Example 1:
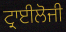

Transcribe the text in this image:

ਟ੍ਰਾਈਲੋਜੀ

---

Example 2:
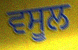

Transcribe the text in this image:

ਵਸੂਲ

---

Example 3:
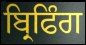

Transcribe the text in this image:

ਬ੍ਰਿਫਿੰਗ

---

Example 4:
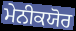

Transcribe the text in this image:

ਮੇਨੀਕਯੋਰ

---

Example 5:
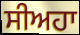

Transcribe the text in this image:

ਸੀਅਹਾ